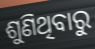
ଶୁଣିଥିବାରୁ